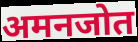
अमनजोत